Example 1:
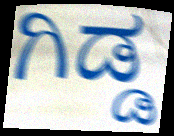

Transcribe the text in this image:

ಗಿಡ್ಡ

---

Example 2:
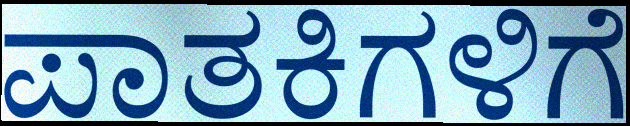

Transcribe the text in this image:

ಪಾತಕಿಗಳಿಗೆ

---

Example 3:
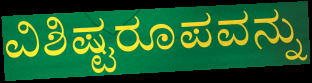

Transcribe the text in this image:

ವಿಶಿಷ್ಟರೂಪವನ್ನು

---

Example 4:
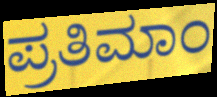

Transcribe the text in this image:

ಪ್ರತಿಮಾಂ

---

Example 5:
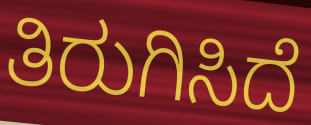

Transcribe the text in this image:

ತಿರುಗಿಸಿದೆ